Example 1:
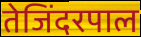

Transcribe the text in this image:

तेजिंदरपाल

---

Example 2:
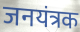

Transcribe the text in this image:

जनयंत्रक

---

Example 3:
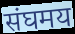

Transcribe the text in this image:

संघमय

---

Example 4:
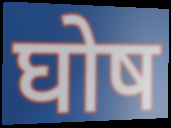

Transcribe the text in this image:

घोष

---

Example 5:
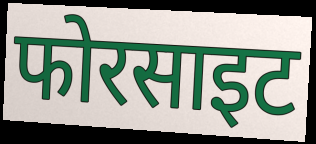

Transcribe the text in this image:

फोरसाइट